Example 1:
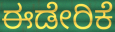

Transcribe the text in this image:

ಈಡೇರಿಕೆ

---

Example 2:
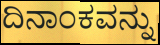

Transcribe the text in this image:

ದಿನಾಂಕವನ್ನು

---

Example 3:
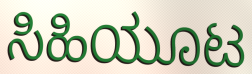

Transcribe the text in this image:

ಸಿಹಿಯೂಟ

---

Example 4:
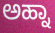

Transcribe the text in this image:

ಅಹ್ನಾ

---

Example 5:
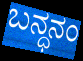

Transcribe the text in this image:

ಬನ್ಧನಂ